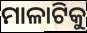
ମାଳାଟିକୁ